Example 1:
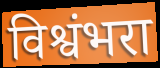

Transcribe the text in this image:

विश्वंभरा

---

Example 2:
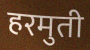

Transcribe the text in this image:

हरमुती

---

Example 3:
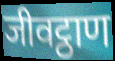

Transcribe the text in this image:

जीवट्ठाण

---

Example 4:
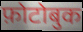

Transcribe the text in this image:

फ़ोटोबुक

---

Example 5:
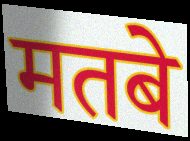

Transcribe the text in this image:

मतबे